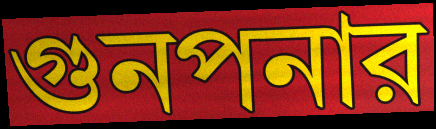
গুনপনার